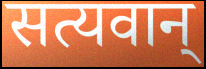
सत्यवान्